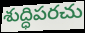
శుద్ధిపరచు